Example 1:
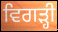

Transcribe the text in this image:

ਵਿਗੜ੍ਹੀ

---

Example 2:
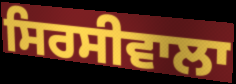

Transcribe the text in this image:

ਸਿਰਸੀਵਾਲਾ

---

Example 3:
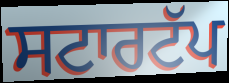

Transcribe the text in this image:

ਸਟਾਰਟੱਪ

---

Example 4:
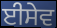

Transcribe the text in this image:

ਈਸੇਵ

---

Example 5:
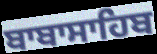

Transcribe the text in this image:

ਬਾਬਾਸਾਹਿਬ